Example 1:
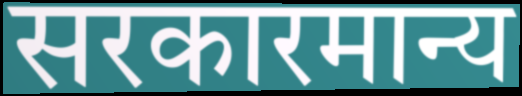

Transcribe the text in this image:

सरकारमान्य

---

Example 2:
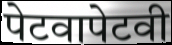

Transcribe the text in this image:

पेटवापेटवी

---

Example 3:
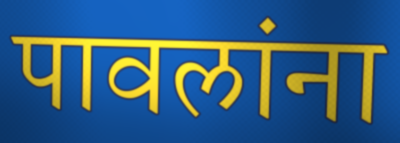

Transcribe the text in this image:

पावलांना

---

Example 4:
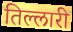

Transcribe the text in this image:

तिल्लारी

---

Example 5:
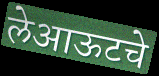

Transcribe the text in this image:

लेआऊटचे